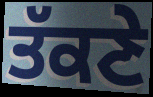
ਤੱਕਣੇ